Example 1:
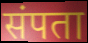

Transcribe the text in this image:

संपता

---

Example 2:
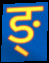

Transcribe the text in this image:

ङ्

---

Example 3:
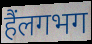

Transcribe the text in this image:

हैंलगभग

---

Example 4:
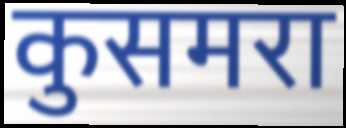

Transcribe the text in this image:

कुसमरा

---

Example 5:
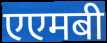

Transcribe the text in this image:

एएमबी